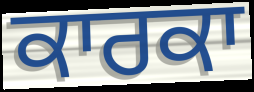
ਕਾਰਕਾ